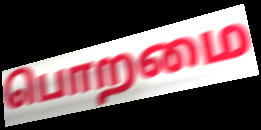
பொறமை